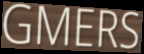
GMERS